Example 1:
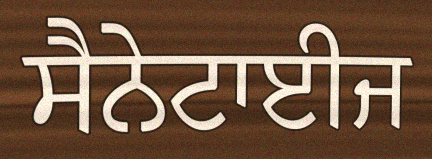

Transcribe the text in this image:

ਸੈਨੇਟਾਈਜ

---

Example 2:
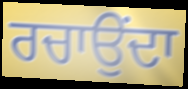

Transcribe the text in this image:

ਰਚਾਉਂਦਾ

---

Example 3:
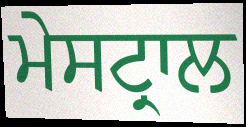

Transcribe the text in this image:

ਮੇਸਟ੍ਰਾਲ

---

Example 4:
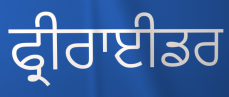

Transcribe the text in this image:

ਫ੍ਰੀਰਾਈਡਰ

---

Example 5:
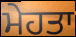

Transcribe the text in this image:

ਮੇਹਤਾ